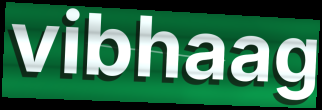
vibhaag